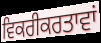
ਵਿਕਰੀਕਰਤਾਵਾਂ